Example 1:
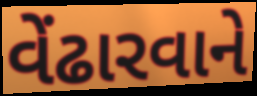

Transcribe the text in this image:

વેંઢારવાને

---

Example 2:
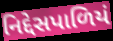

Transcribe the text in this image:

નિદ્દેસપાળિયં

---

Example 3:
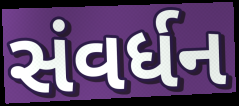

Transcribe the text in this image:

સંવર્ધન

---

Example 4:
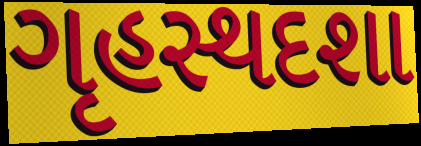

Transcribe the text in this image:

ગૃહસ્થદશા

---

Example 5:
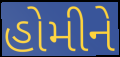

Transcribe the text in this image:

હોમીને